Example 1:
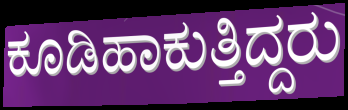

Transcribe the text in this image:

ಕೂಡಿಹಾಕುತ್ತಿದ್ದರು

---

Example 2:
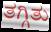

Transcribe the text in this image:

ತಗ್ಗಿತು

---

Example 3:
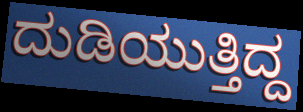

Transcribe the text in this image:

ದುಡಿಯುತ್ತಿದ್ದ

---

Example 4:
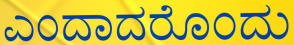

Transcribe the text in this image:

ಎಂದಾದರೊಂದು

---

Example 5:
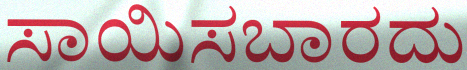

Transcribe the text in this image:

ಸಾಯಿಸಬಾರದು